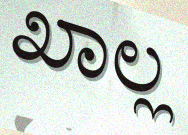
ಖಾಲ್ಲ